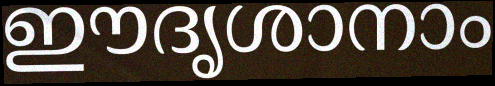
ഈദൃശാനാം